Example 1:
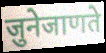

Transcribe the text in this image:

जुनेजाणते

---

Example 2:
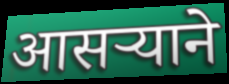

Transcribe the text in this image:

आसर्‍याने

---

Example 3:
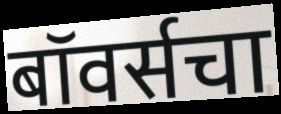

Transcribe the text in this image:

बॉवर्सचा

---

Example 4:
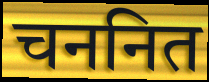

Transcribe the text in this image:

चननित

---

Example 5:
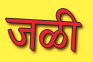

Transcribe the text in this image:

जळी